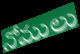
నోములు